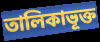
তালিকাভূক্ত